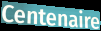
Centenaire